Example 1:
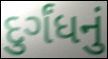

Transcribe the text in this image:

દુર્ગંધનું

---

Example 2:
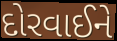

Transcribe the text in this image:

દોરવાઈને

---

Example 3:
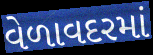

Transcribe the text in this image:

વેળાવદરમાં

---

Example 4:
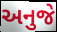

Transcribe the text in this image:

અનુજે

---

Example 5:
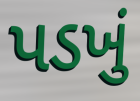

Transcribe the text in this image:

પડખું